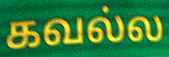
கவல்ல